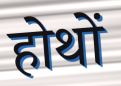
होथों